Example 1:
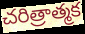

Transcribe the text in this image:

చరిత్రాత్మక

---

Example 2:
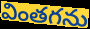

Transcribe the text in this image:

వింతగను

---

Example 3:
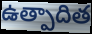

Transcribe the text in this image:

ఉత్పాదిత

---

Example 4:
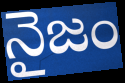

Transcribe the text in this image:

నైజం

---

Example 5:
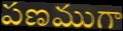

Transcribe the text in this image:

పణముగా